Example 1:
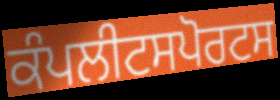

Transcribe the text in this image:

ਕੰਪਲੀਟਸਪੋਰਟਸ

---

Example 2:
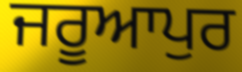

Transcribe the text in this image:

ਜਰੂਆਪੁਰ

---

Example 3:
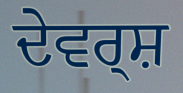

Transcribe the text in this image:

ਦੇਵਰ੍ਸ਼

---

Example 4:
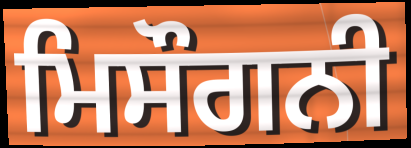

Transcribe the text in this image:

ਮਿਸੌਗਨੀ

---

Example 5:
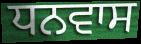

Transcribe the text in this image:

ਧਨਵਾਸ